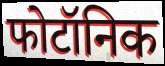
फोटॉनिक